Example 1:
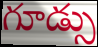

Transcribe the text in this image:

గూడ్సు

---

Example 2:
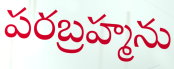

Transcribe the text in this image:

పరబ్రహ్మను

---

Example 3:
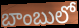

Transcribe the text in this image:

బాంబులో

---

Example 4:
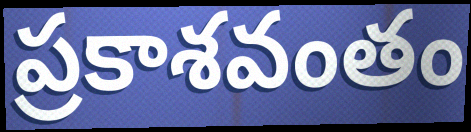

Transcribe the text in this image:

ప్రకాశవంతం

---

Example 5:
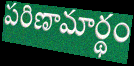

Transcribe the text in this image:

పరిణామార్థం